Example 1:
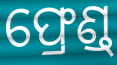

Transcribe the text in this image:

ଫ୍ରେଣ୍ଡ୍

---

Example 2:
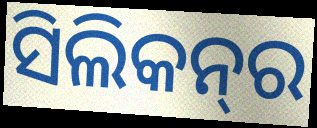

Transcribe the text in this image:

ସିଲିକନ୍‌ର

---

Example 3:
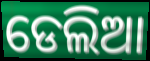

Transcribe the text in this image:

ଡେଲିଆ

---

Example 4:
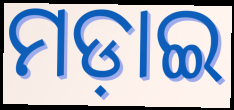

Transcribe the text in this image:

ମଡ଼ାଇ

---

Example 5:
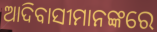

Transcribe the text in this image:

ଆଦିବାସୀମାନଙ୍କରେ